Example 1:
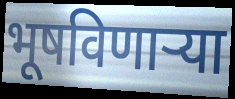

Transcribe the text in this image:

भूषविणार्‍या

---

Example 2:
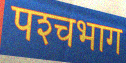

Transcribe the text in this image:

पश्चभाग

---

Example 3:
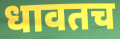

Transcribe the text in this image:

धावतच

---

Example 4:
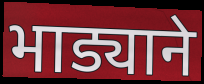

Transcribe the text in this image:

भाड्याने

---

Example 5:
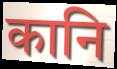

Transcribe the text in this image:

कानि